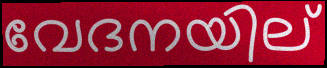
വേദനയില്